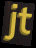
jt